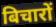
बिचारों